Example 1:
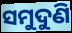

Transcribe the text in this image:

ସମୁଦୁଣି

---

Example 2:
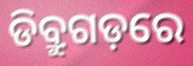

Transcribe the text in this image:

ଡିବ୍ରୁଗଡ଼ରେ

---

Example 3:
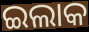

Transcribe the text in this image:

ଇଲାକ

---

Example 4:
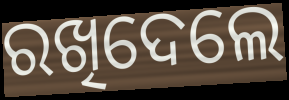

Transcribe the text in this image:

ରଖିଦେଲେ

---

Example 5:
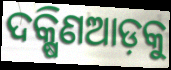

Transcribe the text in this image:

ଦକ୍ଷିଣଆଡ଼କୁ